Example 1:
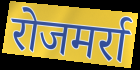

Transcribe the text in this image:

रोजमर्रा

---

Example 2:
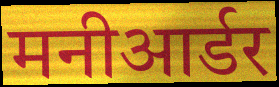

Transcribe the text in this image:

मनीआर्डर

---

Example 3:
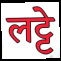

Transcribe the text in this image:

लट्टे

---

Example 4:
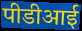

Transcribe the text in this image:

पीडीआई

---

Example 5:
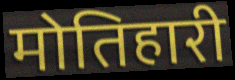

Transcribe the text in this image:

मोतिहारी